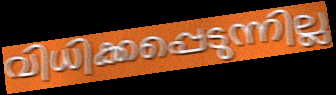
വിധിക്കപ്പെടുന്നില്ല